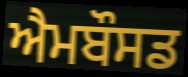
ਐਮਬੌਸਡ